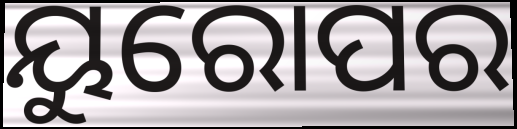
ୟୁରୋପର